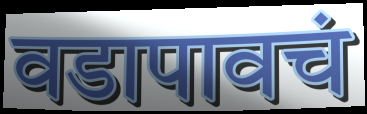
वडापावचं